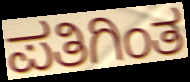
ಪತಿಗಿಂತ